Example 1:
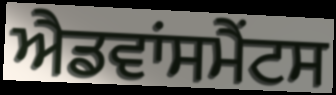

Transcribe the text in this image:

ਐਡਵਾਂਸਮੈਂਟਸ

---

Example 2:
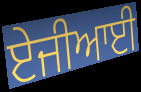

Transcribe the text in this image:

ਏਜੀਆਈ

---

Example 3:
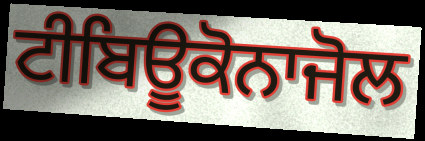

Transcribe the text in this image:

ਟੀਬਿਊਕੋਨਾਜੋਲ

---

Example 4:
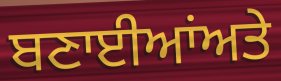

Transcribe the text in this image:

ਬਣਾਈਆਂਅਤੇ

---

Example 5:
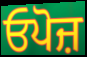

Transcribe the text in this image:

ਓਪੋਜ਼